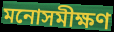
মনোসমীক্ষণ